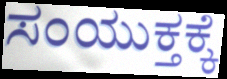
ಸಂಯುಕ್ತಕ್ಕೆ